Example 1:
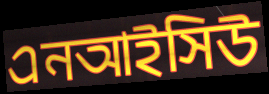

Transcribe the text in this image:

এনআইসিউ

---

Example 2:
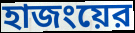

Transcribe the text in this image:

হাজংয়ের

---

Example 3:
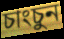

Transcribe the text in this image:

চাংচুন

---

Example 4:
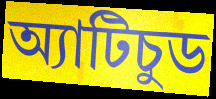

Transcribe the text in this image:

অ্যাটিচুড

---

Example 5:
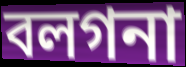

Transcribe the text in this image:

বলগনা